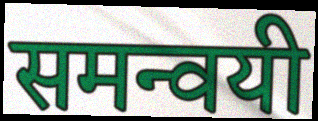
समन्वयी